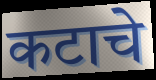
कटाचे